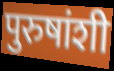
पुरुषांशी